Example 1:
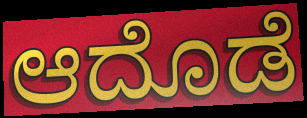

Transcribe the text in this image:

ಆದೊಡೆ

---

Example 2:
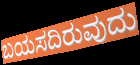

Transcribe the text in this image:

ಬಯಸದಿರುವುದು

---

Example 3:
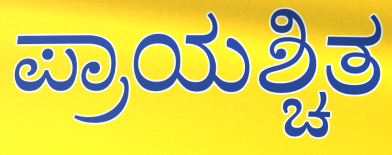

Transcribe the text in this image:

ಪ್ರಾಯಶ್ಚಿತ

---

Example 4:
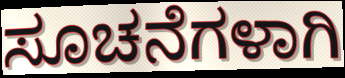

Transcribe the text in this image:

ಸೂಚನೆಗಳಾಗಿ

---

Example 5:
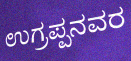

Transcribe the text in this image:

ಉಗ್ರಪ್ಪನವರ